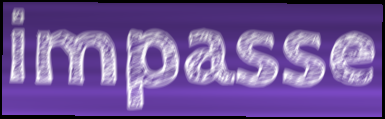
impasse